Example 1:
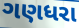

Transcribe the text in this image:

ગણધરા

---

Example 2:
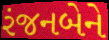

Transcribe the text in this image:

રંજનબેને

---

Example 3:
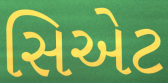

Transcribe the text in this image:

સિએટ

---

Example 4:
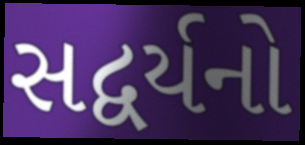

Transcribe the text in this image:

સદ્વર્યનો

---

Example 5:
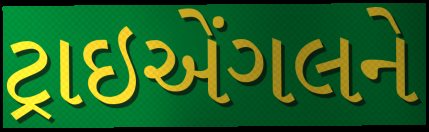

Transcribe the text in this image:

ટ્રાઇએંગલને